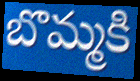
బొమ్మకి